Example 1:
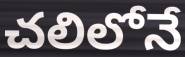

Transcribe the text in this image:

చలిలోనే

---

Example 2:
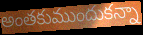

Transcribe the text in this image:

అంతకుముందుకన్నా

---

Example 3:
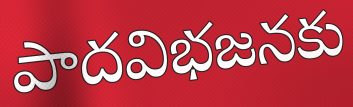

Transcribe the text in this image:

పాదవిభజనకు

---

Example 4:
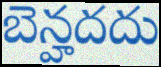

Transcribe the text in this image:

బెన్హదదు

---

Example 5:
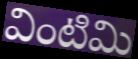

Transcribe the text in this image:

వింటిమి